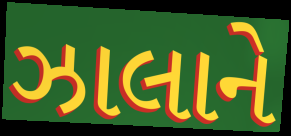
ઝાલાને